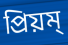
প্রিয়ম্